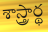
శాస్త్రార్థ